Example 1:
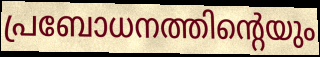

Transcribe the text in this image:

പ്രബോധനത്തിന്റെയും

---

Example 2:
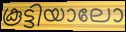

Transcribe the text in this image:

കൂട്ടിയാലോ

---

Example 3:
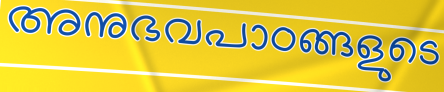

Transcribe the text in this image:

അനുഭവപാഠങ്ങളുടെ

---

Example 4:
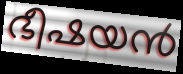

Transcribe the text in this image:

ഭീഷയൻ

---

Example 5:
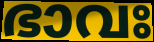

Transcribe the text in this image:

ഭാവഃ